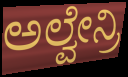
ಅಲ್ವೇನ್ರಿ